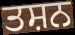
ਤਸ਼ਨ